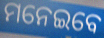
ମନେଇବେ